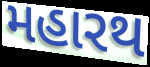
મહારથ